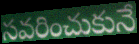
సవరించుకునే